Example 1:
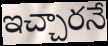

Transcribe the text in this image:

ఇచ్చారనే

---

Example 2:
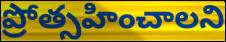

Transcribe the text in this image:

ప్రోత్సహించాలని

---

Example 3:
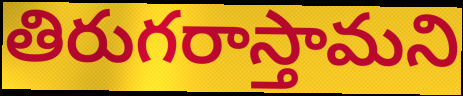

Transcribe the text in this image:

తిరుగరాస్తామని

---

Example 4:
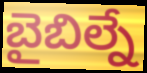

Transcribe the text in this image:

బైబిల్నే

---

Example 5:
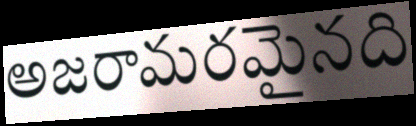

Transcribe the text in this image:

అజరామరమైనది